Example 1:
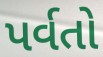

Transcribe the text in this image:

પર્વતો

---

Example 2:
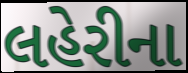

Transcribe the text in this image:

લહેરીના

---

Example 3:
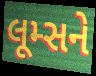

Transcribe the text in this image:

લૂમ્સને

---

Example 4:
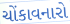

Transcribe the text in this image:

ચોંકાવનારો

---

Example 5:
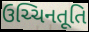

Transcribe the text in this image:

ઉચ્ચિનતૂતિ